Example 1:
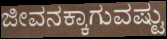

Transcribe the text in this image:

ಜೀವನಕ್ಕಾಗುವಷ್ಟು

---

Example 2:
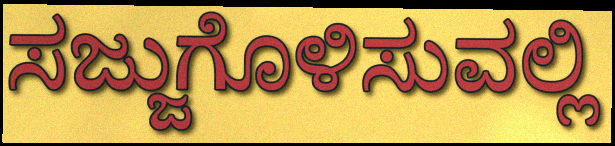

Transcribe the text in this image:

ಸಜ್ಜುಗೊಳಿಸುವಲ್ಲಿ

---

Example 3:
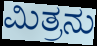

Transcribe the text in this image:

ಮಿತ್ರನು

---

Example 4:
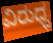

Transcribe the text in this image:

ವಿರುಧ್ಧ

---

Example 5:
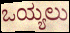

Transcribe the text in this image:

ಒಯ್ಯಲು